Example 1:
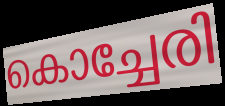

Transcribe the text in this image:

കൊച്ചേരി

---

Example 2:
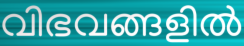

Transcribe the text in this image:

വിഭവങ്ങളിൽ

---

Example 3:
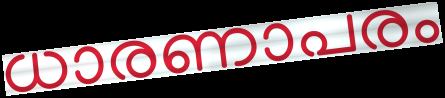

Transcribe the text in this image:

ധാരണാപരം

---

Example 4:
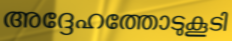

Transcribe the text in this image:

അദ്ദേഹത്തോടുകൂടി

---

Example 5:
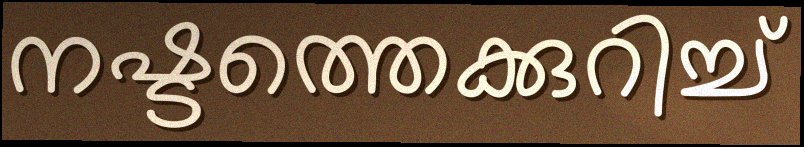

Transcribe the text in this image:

നഷ്ടത്തെക്കുറിച്ച്